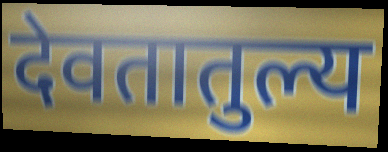
देवतातुल्य